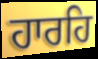
ਹਾਰਹਿ